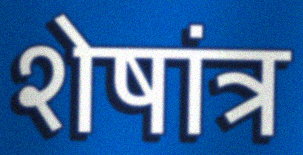
शेषांत्र